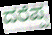
ದರೆಪ್ಪ